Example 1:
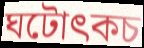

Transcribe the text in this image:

ঘটোৎকচ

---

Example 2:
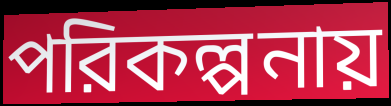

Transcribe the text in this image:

পরিকল্পনায়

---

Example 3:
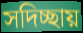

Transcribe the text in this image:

সদিচ্ছায়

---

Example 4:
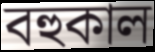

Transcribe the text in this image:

বহুকাল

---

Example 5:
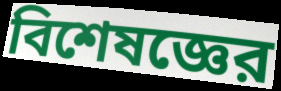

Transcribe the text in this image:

বিশেষজ্ঞের